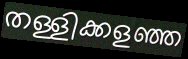
തള്ളിക്കളഞ്ഞ